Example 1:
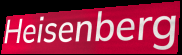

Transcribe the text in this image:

Heisenberg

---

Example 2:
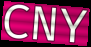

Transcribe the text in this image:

CNY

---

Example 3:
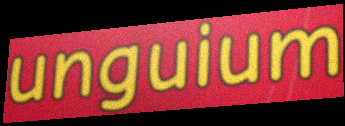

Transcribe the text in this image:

unguium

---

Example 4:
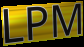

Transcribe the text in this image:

LPM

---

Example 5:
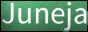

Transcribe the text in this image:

Juneja